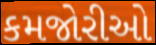
કમજોરીઓ